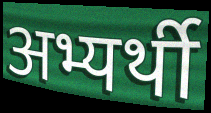
अभ्यर्थी